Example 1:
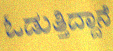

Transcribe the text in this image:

ಓಡುತ್ತಿದ್ದಾನೆ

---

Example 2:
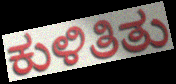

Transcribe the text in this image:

ಕುಳಿತಿತು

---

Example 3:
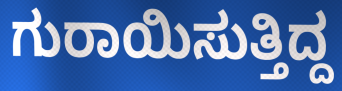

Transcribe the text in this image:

ಗುರಾಯಿಸುತ್ತಿದ್ದ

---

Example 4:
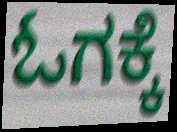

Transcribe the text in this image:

ಓಗಕ್ಕೆ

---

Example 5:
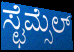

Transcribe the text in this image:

ಸ್ಟೆಮ್ಸೆಲ್